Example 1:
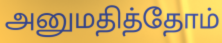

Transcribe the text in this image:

அனுமதித்தோம்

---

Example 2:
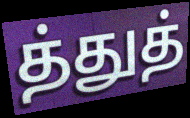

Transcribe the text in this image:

த்துத்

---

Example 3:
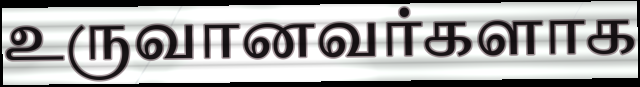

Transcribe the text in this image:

உருவானவர்களாக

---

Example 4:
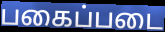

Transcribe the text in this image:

பகைப்படை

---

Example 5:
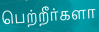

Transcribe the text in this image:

பெற்றீர்களா